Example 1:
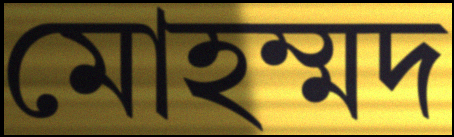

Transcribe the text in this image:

মোহম্মদ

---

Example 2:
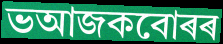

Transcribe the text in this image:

ভআজকবোৰৰ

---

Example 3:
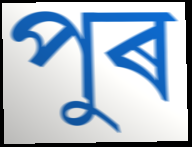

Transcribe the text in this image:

পুৰ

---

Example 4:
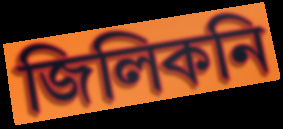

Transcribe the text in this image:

জিলিকনি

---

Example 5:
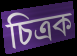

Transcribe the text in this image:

চিত্ৰক